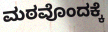
ಮಠವೊಂದಕ್ಕೆ